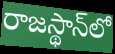
రాజస్థాన్‌లో